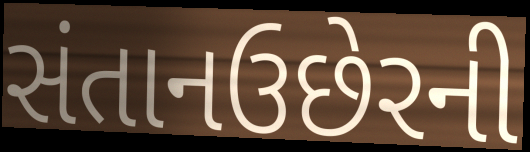
સંતાનઉછેરની